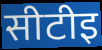
सीटीइ